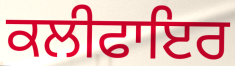
ਕਲੀਫਾਇਰ